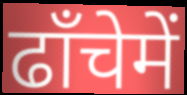
ढाँचेमें